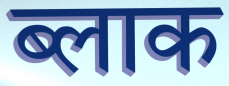
ब्लाक